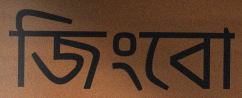
জিংবো